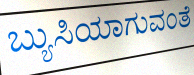
ಬ್ಯುಸಿಯಾಗುವಂತೆ